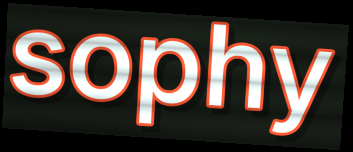
sophy